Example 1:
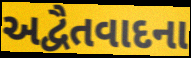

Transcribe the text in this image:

અદ્વૈતવાદના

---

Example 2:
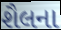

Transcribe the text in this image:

શૈલના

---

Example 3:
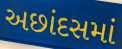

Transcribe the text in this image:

અછાંદસમાં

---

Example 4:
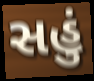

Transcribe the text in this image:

સહું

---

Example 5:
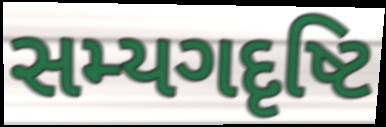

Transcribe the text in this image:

સમ્યગદૃષ્ટિ